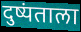
दुष्यंताला